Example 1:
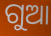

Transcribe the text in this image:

ଗୁଆ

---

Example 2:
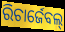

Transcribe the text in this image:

ରିଚାର୍ଜେବଲ୍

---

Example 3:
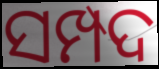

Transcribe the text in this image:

ସମ୍ପଦ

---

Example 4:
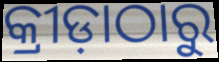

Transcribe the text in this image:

କ୍ରୀଡ଼ାଠାରୁ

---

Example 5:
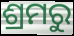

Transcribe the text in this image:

ଶ୍ରମରୁ